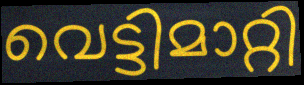
വെട്ടിമാറ്റി